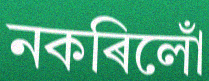
নকৰিলোঁ